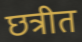
छत्रीत